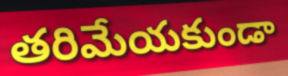
తరిమేయకుండా